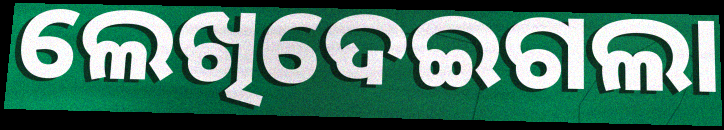
ଲେଖିଦେଇଗଲା